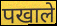
पखाले